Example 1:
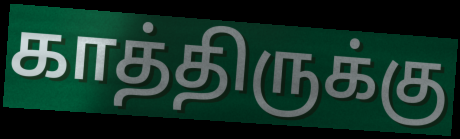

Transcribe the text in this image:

காத்திருக்கு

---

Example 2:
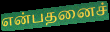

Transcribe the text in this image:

என்பதனைச்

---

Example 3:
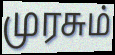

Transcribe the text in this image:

முரசும்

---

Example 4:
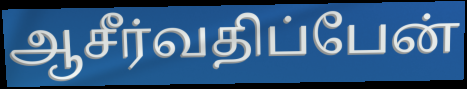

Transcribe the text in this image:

ஆசீர்வதிப்பேன்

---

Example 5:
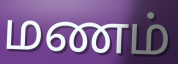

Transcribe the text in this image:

மணம்